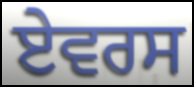
ਏਵਰਸ